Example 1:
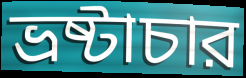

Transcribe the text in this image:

ভ্রষ্টাচার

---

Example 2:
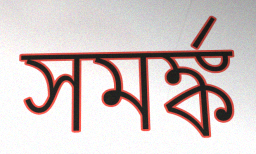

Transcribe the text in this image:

সমর্ঙ্ক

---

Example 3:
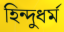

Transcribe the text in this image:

হিন্দুধর্ম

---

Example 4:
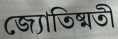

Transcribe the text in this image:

জ্যোতিষ্মতী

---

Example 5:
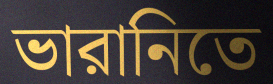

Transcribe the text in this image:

ভারানিতে